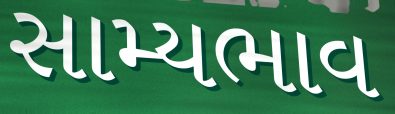
સામ્યભાવ